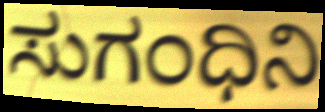
ಸುಗಂಧಿನಿ